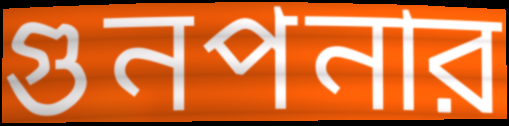
গুনপনার